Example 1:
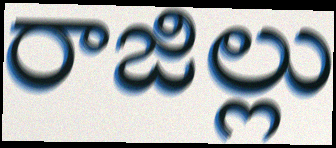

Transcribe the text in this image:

రాజిల్లు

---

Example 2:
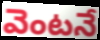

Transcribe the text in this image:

వెంటనే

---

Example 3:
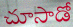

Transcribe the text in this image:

చూసాడో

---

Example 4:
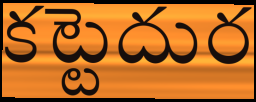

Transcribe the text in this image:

కట్టెదుర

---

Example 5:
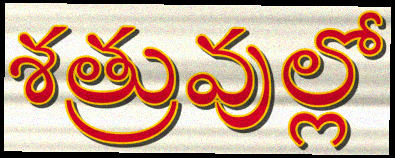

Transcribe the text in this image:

శత్రువుల్లో